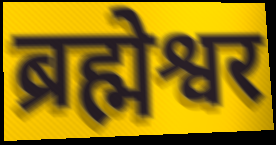
ब्रह्मेश्वर